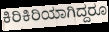
ಕಿರಿಕಿರಿಯಾಗಿದ್ದರೂ